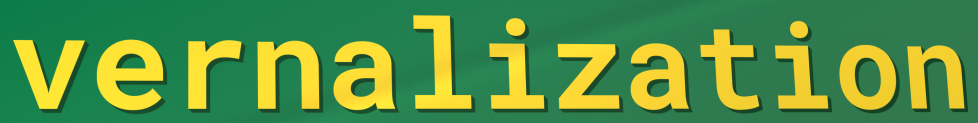
vernalization